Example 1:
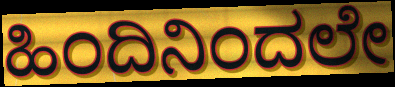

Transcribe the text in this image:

ಹಿಂದಿನಿಂದಲೇ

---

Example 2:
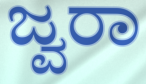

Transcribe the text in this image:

ಜ್ವರಾ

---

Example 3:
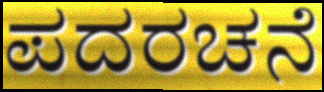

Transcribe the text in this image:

ಪದರಚನೆ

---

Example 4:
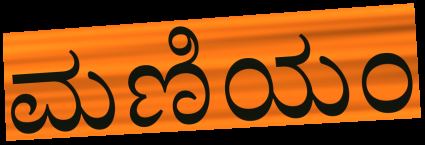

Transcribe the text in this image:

ಮಣಿಯಂ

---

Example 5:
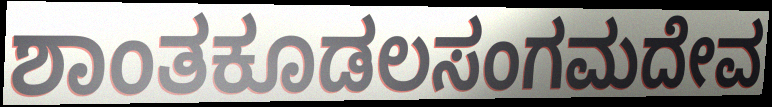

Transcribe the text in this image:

ಶಾಂತಕೂಡಲಸಂಗಮದೇವ